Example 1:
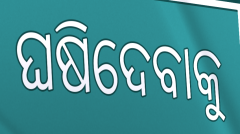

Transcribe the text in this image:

ଘଷିଦେବାକୁ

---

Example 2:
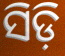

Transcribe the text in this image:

ସିଡ଼ି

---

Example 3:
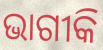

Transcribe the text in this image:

ଭାଗୀକି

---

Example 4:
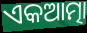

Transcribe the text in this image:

ଏକଆତ୍ମା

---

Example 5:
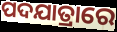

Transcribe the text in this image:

ପଦଯାତ୍ରାରେ